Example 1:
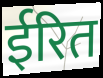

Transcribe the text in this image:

ईरित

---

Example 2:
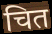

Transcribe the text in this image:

चित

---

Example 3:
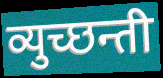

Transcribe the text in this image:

व्युच्छन्ती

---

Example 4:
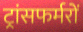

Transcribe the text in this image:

ट्रांसफर्मरों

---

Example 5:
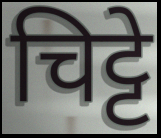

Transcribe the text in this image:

चिट्टे